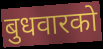
बुधवारको